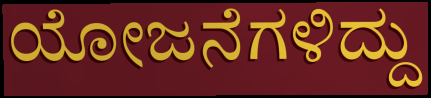
ಯೋಜನೆಗಳಿದ್ದು